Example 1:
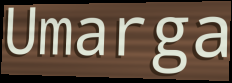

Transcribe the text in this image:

Umarga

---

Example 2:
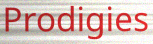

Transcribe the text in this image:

Prodigies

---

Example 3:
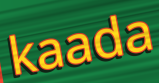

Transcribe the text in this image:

kaada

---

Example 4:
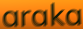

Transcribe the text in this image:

araka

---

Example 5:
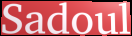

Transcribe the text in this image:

Sadoul